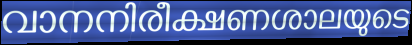
വാനനിരീക്ഷണശാലയുടെ